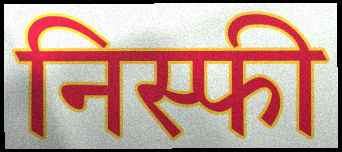
निस्फी